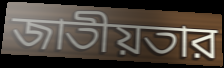
জাতীয়তার